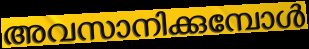
അവസാനിക്കുമ്പോൾ